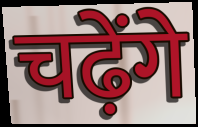
चढ़ेंगे